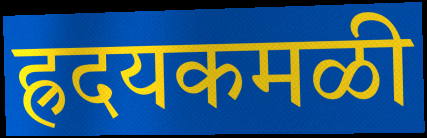
ह्रदयकमळी